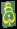
థీ